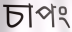
চাপং